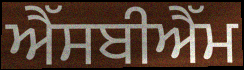
ਐੱਸਬੀਐੱਮ